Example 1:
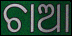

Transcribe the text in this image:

ଚାଆ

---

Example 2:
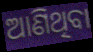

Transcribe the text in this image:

ଆଣିଥିବା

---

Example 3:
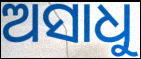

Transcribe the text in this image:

ଅସାଧୁ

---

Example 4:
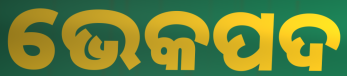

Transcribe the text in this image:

ଭେକପଦ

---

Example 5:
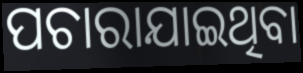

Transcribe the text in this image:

ପଚାରାଯାଇଥିବା